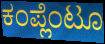
ಕಂಪ್ಲೆಂಟೂ